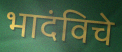
भादंविचे